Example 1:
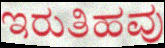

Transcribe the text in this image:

ಇರುತಿಹವು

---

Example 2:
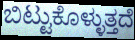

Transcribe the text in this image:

ಬಿಟ್ಟುಕೊಳ್ಳುತ್ತದೆ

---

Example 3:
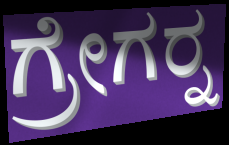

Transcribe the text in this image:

ಗ್ರೇಗರ್‍ನ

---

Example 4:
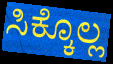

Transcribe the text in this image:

ಸಿಕ್ಕೊಲ್ಲ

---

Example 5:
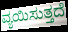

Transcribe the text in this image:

ವ್ಯಯಿಸುತ್ತದೆ